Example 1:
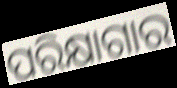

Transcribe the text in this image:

ପରିକ୍ଷାଗାର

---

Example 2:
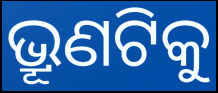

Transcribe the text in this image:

ଭ୍ରୂଣଟିକୁ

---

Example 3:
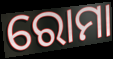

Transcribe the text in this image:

ରୋମା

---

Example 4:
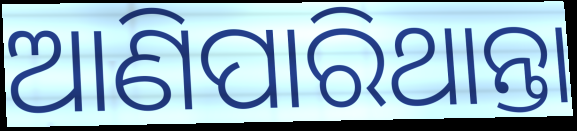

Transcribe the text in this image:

ଆଣିପାରିଥାନ୍ତା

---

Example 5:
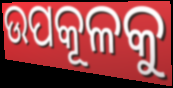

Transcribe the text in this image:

ଉପକୂଳକୁ